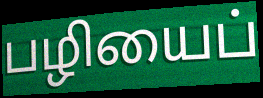
பழியைப்